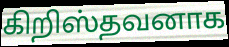
கிறிஸ்தவனாக